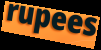
rupees